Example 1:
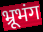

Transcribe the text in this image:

भ्रूभंग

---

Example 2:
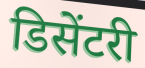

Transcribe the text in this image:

डिसेंटरी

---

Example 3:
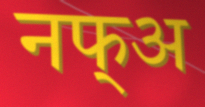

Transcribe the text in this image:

नफ्अ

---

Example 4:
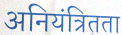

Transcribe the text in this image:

अनियंत्रितता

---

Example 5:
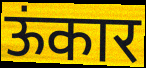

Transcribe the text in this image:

ऊंकार